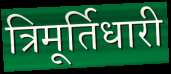
त्रिमूर्तिधारी